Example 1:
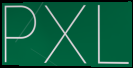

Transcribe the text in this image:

PXL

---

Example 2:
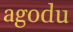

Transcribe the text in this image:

agodu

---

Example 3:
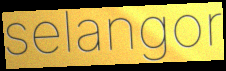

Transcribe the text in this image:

selangor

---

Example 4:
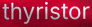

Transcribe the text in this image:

thyristor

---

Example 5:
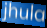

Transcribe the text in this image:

jhula